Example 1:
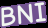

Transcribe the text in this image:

BNI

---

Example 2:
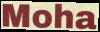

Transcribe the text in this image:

Moha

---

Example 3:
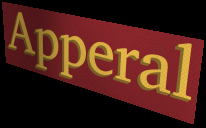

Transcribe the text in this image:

Apperal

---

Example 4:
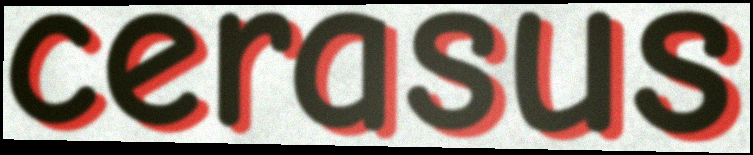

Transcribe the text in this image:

cerasus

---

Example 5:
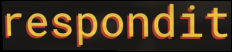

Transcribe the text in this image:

respondit